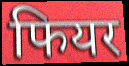
फियर